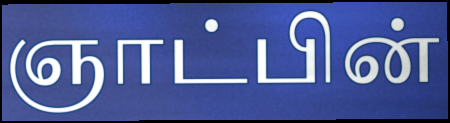
ஞாட்பின்